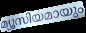
മ്യൂസിയമായും